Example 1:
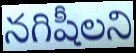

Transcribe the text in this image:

నగిషీలని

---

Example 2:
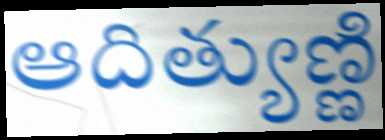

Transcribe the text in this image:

ఆదిత్యుణ్ణి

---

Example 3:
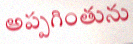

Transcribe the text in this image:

అప్పగింతును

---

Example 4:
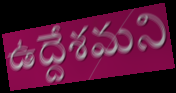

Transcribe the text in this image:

ఉద్దేశమని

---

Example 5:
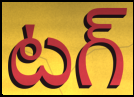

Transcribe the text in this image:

టగ్